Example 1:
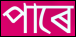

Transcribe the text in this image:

পাৰে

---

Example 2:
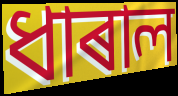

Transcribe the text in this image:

ধাৰাল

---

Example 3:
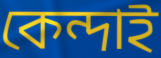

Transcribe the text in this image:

কেন্দাই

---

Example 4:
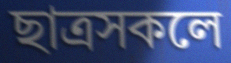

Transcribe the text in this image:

ছাত্ৰসকলে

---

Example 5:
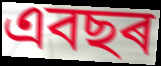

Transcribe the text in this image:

এবছৰ